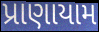
પ્રાણાયામ